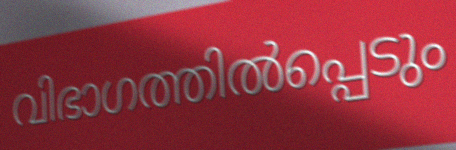
വിഭാഗത്തിൽപ്പെടും